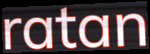
ratan